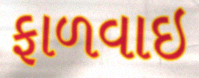
ફાળવાઇ